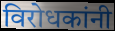
विरोधकांनी